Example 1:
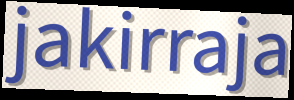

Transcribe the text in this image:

jakirraja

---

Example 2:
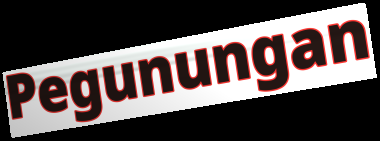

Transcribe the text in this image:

Pegunungan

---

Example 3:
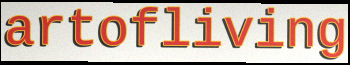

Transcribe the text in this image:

artofliving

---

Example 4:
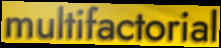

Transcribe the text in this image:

multifactorial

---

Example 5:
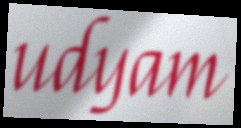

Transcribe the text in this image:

udyam